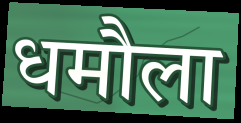
धमौला